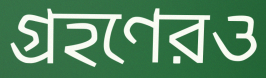
গ্রহণেরও